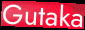
Gutaka